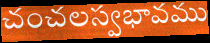
చంచలస్వభావము